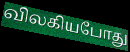
விலகியபோது